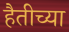
हैतीच्या